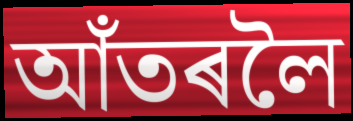
আঁতৰলৈ